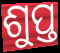
ଶୁପ୍ତ